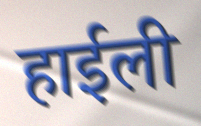
हाईली